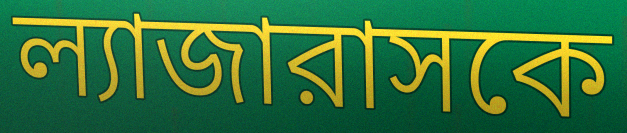
ল্যাজারাসকে